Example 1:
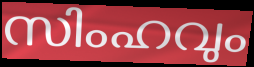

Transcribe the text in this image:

സിംഹവും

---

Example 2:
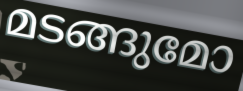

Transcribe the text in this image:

മടങ്ങുമോ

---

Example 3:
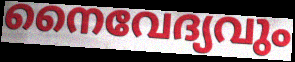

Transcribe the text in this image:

നൈവേദ്യവും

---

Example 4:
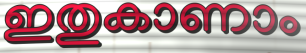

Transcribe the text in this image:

ഇതുകാണാം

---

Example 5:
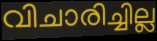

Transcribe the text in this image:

വിചാരിച്ചില്ല